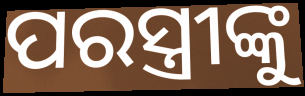
ପରସ୍ତ୍ରୀଙ୍କୁ